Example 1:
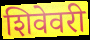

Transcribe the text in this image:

शिवेवरी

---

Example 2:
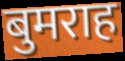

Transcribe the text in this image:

बुमराह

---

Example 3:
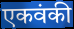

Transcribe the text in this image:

एकवंकी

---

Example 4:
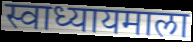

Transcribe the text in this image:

स्वाध्यायमाला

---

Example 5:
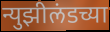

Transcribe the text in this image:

न्युझीलंडच्या